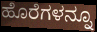
ಹೊರೆಗಳನ್ನೂ